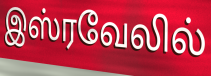
இஸ்ரவேலில்